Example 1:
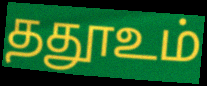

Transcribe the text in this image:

ததூஉம்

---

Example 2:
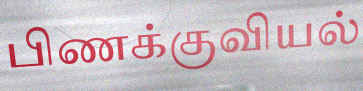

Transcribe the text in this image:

பிணக்குவியல்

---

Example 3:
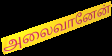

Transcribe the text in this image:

அலைவானேன்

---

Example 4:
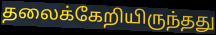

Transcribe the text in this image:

தலைக்கேறியிருந்தது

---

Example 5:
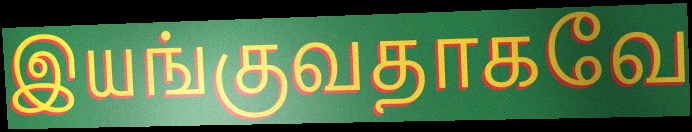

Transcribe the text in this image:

இயங்குவதாகவே